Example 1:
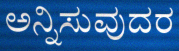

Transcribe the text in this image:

ಅನ್ನಿಸುವುದರ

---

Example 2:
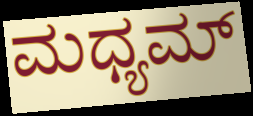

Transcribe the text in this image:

ಮಧ್ಯಮ್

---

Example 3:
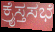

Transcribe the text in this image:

ಕ್ರೈಸ್ತಸಭೆ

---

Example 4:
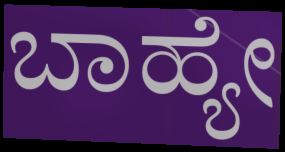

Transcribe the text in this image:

ಬಾಹ್ಯೇ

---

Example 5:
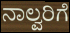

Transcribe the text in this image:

ನಾಲ್ವರಿಗೆ